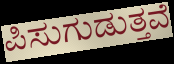
ಪಿಸುಗುಡುತ್ತವೆ